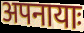
अपनायाः